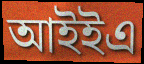
আইইএ